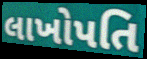
લાખોપતિ